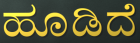
ಹೂಡಿದೆ